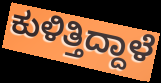
ಕುಳಿತ್ತಿದ್ದಾಳೆ